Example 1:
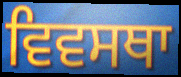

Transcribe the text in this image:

ਵਿਵਸਥਾ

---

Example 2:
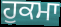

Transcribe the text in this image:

ਹੁਕਮਾ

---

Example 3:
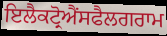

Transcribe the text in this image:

ਇਲੈਕਟ੍ਰੋਐਂਸਫੈਲਗਰਾਮ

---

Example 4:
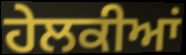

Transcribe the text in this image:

ਹੇਲਕੀਆਂ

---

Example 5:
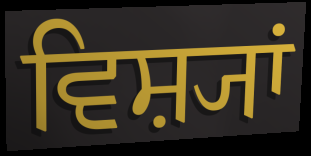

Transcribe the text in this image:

ਵਿਸ਼੍ਯਾਂ